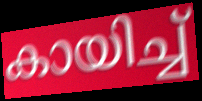
കായിച്ച്